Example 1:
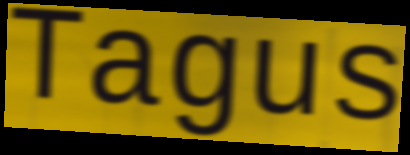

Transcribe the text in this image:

Tagus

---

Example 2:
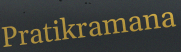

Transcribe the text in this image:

Pratikramana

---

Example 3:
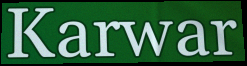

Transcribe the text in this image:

Karwar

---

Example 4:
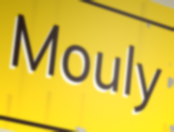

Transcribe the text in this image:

Mouly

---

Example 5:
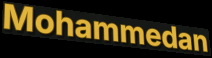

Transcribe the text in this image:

Mohammedan